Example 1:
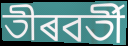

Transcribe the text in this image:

তীৰবৰ্তী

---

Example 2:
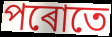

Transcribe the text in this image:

পৰোতে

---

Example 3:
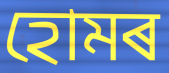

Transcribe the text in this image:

হোমৰ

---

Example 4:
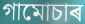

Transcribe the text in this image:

গামোচাৰ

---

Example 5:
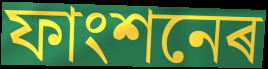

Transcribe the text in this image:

ফাংশনেৰ